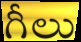
గీలు